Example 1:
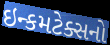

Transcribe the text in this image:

ઇન્કમટેક્સનો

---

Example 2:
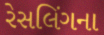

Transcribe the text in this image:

રેસલિંગના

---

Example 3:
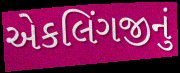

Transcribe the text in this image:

એકલિંગજીનું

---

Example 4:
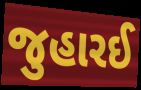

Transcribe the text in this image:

જુહારઈ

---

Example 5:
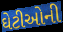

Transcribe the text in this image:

ઘેટીઓની